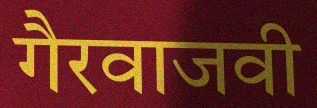
गैरवाजवी